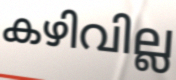
കഴിവില്ല